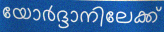
യോർദ്ദാനിലേക്ക്